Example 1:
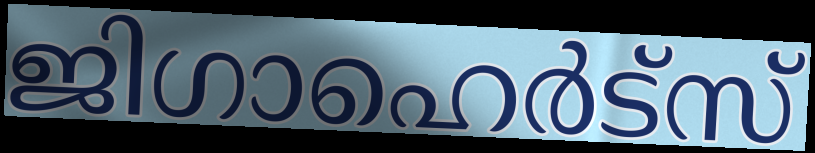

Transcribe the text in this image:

ജിഗാഹെർട്സ്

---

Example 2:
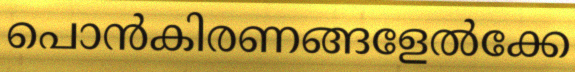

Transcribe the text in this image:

പൊൻകിരണങ്ങളേൽക്കേ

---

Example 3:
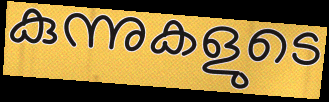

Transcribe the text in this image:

കുന്നുകളുടെ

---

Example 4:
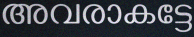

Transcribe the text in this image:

അവരാകട്ടേ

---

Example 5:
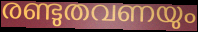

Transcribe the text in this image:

രണ്ടുതവണയും